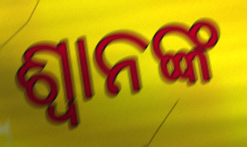
ଶ୍ବାନଙ୍କ